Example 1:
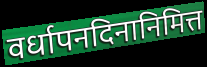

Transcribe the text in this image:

वर्धापनदिनानिमित्त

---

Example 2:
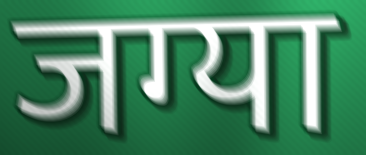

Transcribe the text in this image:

जग्या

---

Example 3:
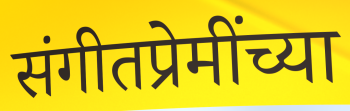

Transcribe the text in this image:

संगीतप्रेमींच्या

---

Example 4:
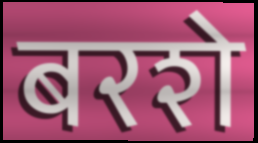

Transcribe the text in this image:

बरशे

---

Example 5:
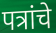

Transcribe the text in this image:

पत्रांचे